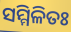
ସମ୍ମିଳିତଃ